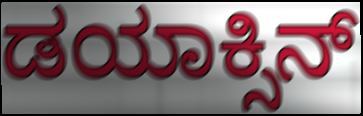
ಡಯಾಕ್ಸಿನ್